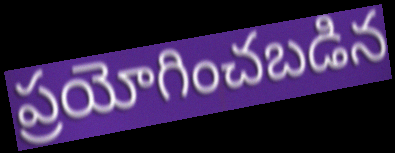
ప్రయోగించబడిన